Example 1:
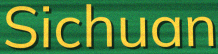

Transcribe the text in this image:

Sichuan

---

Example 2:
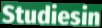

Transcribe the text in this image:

Studiesin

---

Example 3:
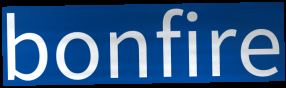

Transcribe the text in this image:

bonfire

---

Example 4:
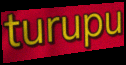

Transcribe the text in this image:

turupu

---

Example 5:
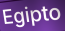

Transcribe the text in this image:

Egipto